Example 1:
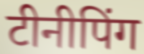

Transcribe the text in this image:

टीनीपिंग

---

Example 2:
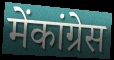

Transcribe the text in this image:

मेंकांग्रेस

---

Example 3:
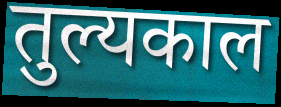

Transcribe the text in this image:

तुल्यकाल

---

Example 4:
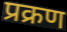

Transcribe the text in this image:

प्रक्रण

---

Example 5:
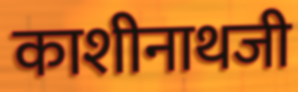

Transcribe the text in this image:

काशीनाथजी